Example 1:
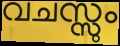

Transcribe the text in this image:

വചസ്സും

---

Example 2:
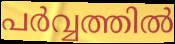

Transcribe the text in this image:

പർവ്വത്തിൽ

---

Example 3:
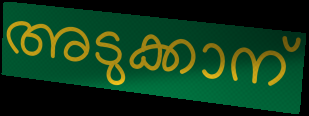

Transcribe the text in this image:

അടുക്കാന്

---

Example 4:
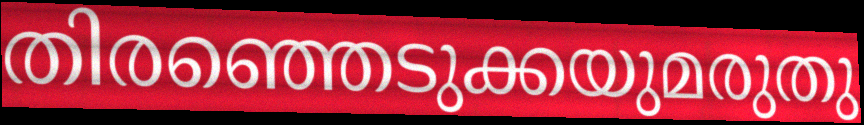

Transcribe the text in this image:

തിരഞ്ഞെടുക്കയുമരുതു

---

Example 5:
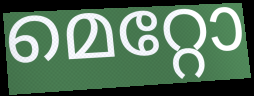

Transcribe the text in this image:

മെറ്റോ